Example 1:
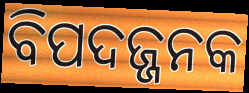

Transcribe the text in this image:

ବିପଦଜ୍ଜନକ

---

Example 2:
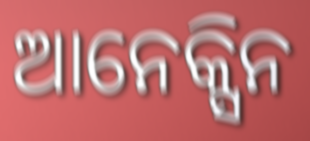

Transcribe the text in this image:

ଆନେକ୍ସିନ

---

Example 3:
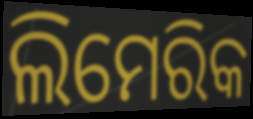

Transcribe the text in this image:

ଲିମେରିକ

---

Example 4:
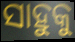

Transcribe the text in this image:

ସାହୁକୁ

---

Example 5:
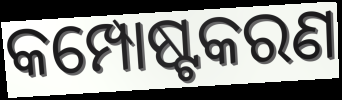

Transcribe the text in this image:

କମ୍ପୋଷ୍ଟକରଣ